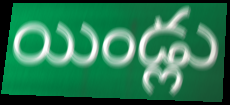
యిండ్లు